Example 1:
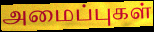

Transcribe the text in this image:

அமைப்புகள்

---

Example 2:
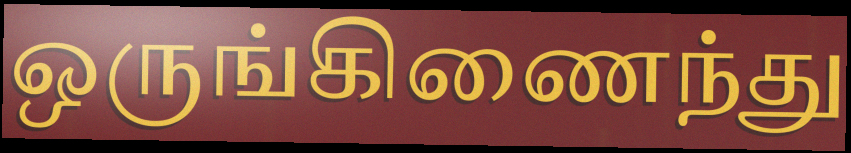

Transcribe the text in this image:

ஒருங்கிணைந்து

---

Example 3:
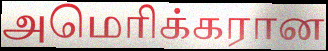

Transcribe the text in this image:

அமெரிக்கரான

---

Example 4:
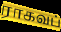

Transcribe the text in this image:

ராகவப்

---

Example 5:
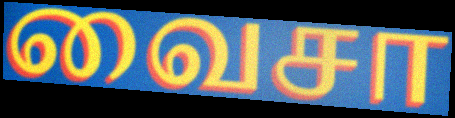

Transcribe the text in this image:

வைசா